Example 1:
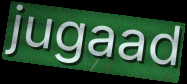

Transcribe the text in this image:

jugaad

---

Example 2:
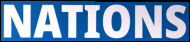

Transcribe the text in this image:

NATIONS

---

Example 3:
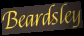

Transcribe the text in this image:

Beardsley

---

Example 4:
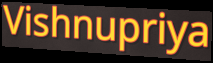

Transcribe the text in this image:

Vishnupriya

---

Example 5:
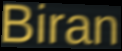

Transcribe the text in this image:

Biran